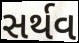
સર્થવ